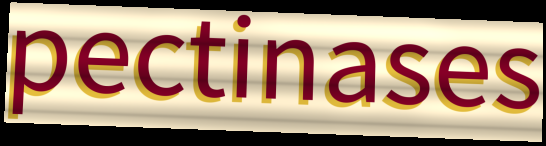
pectinases